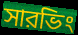
সারভিং